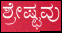
ಶ್ರೇಷ್ಟವು